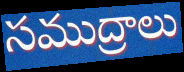
సముద్రాలు